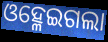
ଓହ୍ଳେଇଗଲା